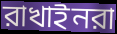
রাখাইনরা